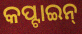
କପ୍ଟାଇନ୍